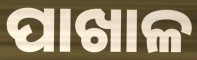
ପାଖାଳ